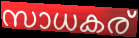
സാധകര്